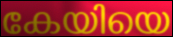
കേയിയെ